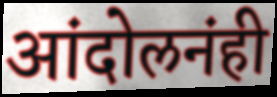
आंदोलनंही